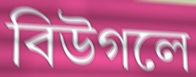
বিউগলে